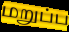
மறுப்ப